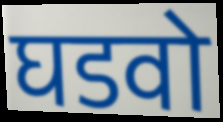
घडवो